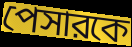
পেসারকে